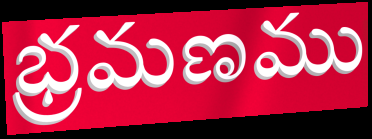
భ్రమణము